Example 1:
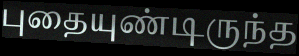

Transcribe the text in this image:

புதையுண்டிருந்த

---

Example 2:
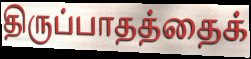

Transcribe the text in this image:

திருப்பாதத்தைக்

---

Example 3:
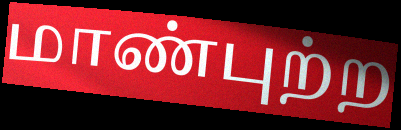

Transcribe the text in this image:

மாண்புற்ற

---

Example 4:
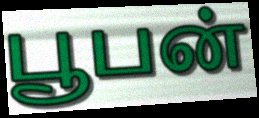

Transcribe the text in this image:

பூபன்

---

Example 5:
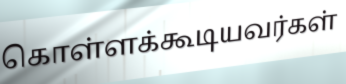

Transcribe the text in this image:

கொள்ளக்கூடியவர்கள்